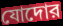
যোদোর